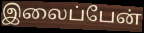
இலைப்பேன்